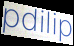
pdilip